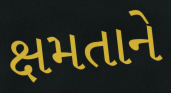
ક્ષમતાને